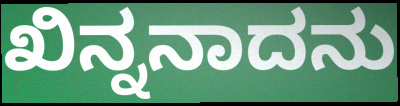
ಖಿನ್ನನಾದನು